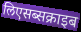
लिएसब्सक्राइब